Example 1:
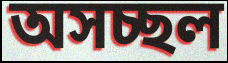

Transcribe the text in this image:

অসচ্ছল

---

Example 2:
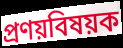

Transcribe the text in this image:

প্রণয়বিষয়ক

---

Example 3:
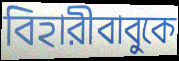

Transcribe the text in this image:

বিহারীবাবুকে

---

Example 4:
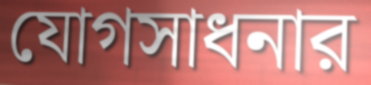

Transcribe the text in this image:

যোগসাধনার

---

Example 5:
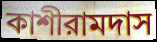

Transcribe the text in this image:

কাশীরামদাস